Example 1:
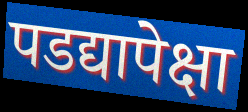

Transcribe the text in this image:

पडद्यापेक्षा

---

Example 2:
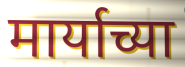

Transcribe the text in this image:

मार्याच्या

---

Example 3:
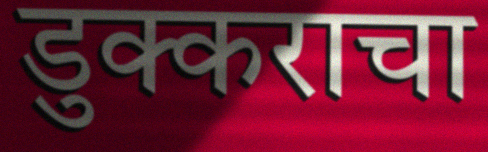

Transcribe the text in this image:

डुक्कराचा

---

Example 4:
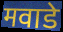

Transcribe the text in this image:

मवाडे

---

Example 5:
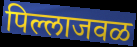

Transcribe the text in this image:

पिल्लाजवळ